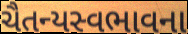
ચૈતન્યસ્વભાવના